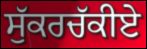
ਸੁੱਕਰਚੱਕੀਏ